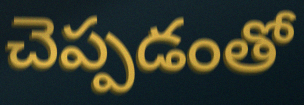
చెప్పడంతో